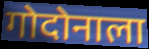
गोदोनाला